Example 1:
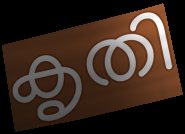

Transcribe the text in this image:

കൃതി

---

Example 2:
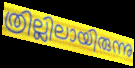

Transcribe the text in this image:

ത്രില്ലിലായിരുന്നു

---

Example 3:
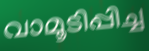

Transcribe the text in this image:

വാമൂടിപ്പിച്ച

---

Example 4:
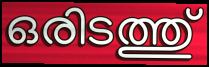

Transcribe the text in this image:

ഒരിടത്തു്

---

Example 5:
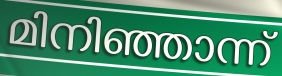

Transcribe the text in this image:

മിനിഞ്ഞാന്ന്